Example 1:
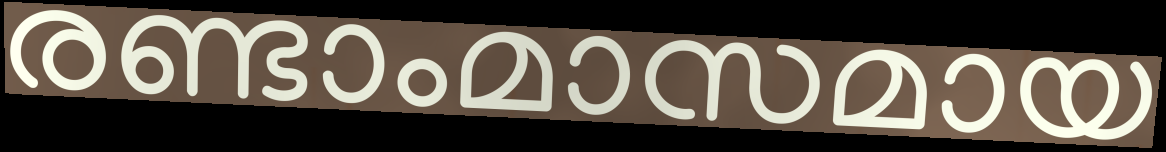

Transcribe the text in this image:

രണ്ടാംമാസമായ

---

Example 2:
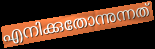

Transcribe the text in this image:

എനിക്കുതോന്നുന്നത്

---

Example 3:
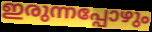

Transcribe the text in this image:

ഇരുന്നപ്പോഴും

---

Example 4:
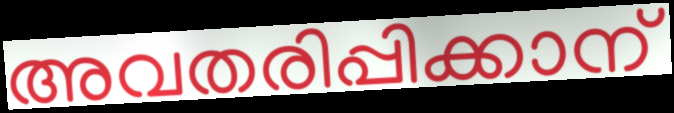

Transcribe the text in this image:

അവതരിപ്പിക്കാന്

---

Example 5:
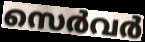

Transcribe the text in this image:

സെർവർ